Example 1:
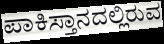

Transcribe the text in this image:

ಪಾಕಿಸ್ತಾನದಲ್ಲಿರುವ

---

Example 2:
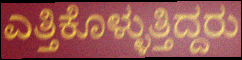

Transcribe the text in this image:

ಎತ್ತಿಕೊಳ್ಳುತ್ತಿದ್ದರು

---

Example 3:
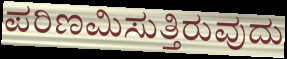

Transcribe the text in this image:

ಪರಿಣಮಿಸುತ್ತಿರುವುದು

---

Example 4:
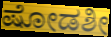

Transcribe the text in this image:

ಷೋಡಶೀ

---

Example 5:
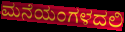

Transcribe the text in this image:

ಮನೆಯಂಗಳದಲಿ